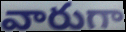
వారుగా